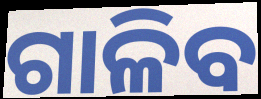
ଗାଳିବ